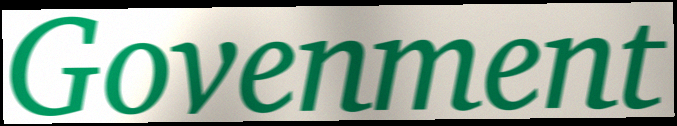
Govenment